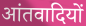
आंतवादियों